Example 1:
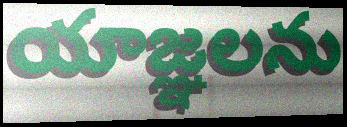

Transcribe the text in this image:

యాజ్ఞలను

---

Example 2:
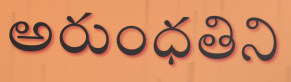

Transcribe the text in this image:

అరుంధతిని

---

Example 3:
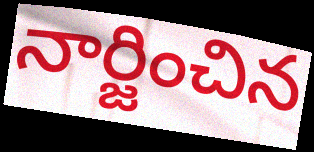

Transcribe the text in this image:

నార్జించిన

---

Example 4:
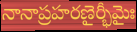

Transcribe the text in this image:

నానాప్రహరణైర్భీమైః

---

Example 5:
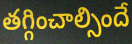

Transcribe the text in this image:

తగ్గించాల్సిందే